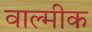
वाल्मीक